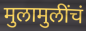
मुलामुलींचं